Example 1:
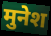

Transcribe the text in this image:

मुनेश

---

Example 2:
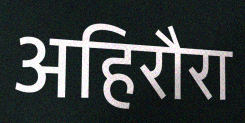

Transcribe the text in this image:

अहिरौरा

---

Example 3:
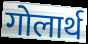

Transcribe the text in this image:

गोलार्थ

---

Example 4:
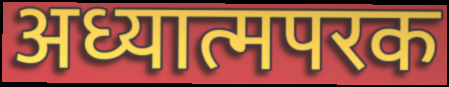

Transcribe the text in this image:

अध्यात्मपरक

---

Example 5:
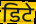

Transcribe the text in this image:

डिटे